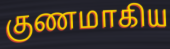
குணமாகிய